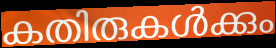
കതിരുകൾക്കും